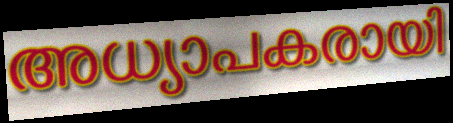
അധ്യാപകരായി